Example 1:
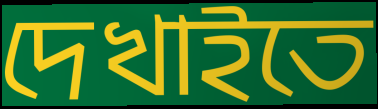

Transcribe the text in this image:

দেখাইতে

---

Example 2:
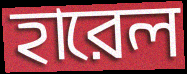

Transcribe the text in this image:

হারেল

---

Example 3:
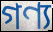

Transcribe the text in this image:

গণ্য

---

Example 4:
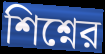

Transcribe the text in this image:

শিশ্নের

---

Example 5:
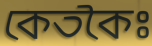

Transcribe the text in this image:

কেতকৈঃ